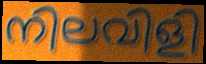
നിലവിളി